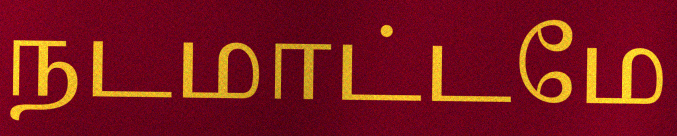
நடமாட்டமே